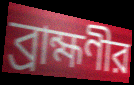
ব্রাহ্মণীর